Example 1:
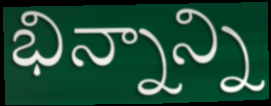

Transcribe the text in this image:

భిన్నాన్ని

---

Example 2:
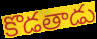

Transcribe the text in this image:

కొడతాడు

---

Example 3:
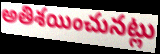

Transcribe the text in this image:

అతిశయించునట్లు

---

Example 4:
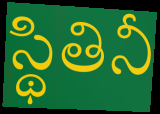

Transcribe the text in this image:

స్థితినీ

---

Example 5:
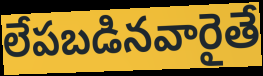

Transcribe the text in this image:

లేపబడినవారైతే